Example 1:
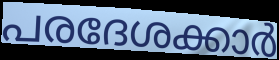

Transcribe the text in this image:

പരദേശക്കാർ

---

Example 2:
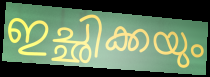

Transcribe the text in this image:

ഇച്ഛിക്കയും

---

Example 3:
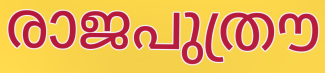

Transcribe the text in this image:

രാജപുത്രൗ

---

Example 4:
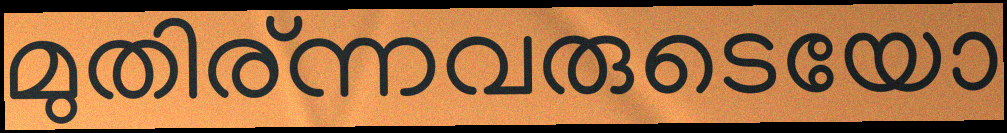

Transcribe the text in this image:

മുതിര്ന്നവരുടെയോ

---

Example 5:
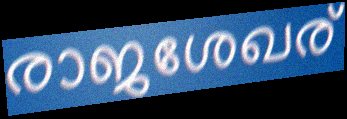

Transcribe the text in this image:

രാജശേഖര്